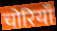
चोरियाँ